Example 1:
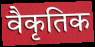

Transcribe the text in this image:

वैकृतिक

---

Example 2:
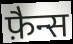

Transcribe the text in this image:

फ़ैन्स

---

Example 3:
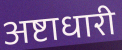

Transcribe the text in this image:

अष्टाधारी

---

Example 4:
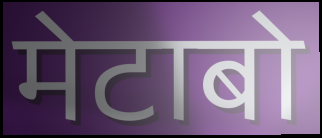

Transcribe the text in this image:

मेटाबो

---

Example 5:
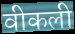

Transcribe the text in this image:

वीकली